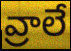
వ్రాలే